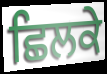
ਛਿਲਕੇ